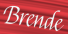
Brende